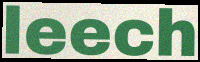
leech